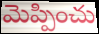
మెప్పించు